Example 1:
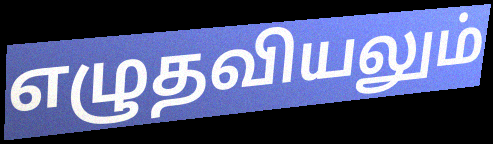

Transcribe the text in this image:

எழுதவியலும்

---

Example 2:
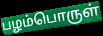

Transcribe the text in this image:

பழம்பொருள்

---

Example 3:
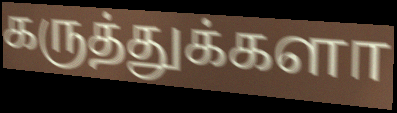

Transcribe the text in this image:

கருத்துக்களா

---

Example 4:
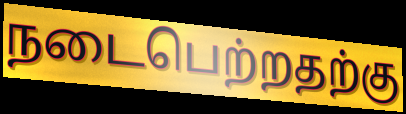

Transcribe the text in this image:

நடைபெற்றதற்கு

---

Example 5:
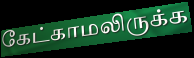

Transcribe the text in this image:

கேட்காமலிருக்க